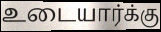
உடையார்க்கு